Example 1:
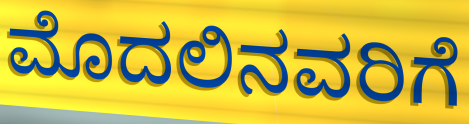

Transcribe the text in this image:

ಮೊದಲಿನವರಿಗೆ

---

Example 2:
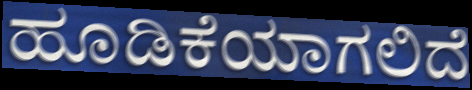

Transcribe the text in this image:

ಹೂಡಿಕೆಯಾಗಲಿದೆ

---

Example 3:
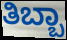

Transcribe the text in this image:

ತಿಬ್ಬಾ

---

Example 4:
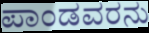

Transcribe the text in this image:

ಪಾಂಡವರನು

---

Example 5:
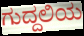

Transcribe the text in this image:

ಗುದ್ದಲಿಯ